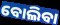
ବୋଲିବା